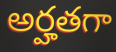
అర్హతగా